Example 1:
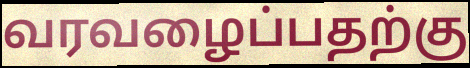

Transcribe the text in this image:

வரவழைப்பதற்கு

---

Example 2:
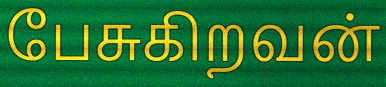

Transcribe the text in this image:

பேசுகிறவன்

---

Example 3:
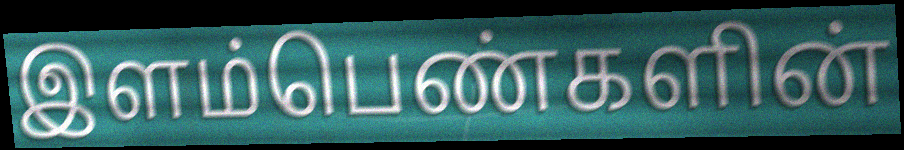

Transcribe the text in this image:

இளம்பெண்களின்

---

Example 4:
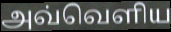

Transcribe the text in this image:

அவ்வெளிய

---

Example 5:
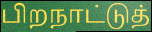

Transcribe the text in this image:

பிறநாட்டுத்